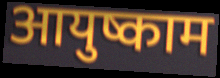
आयुष्काम